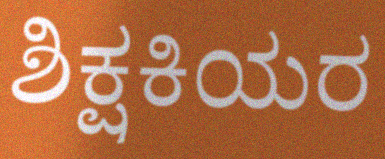
ಶಿಕ್ಷಕಿಯರ